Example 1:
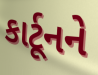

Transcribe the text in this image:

કાર્ટૂનને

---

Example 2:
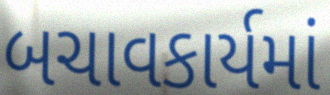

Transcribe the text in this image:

બચાવકાર્યમાં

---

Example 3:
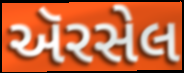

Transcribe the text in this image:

ઍરસેલ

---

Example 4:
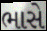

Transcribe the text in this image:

ભાસે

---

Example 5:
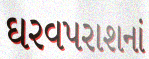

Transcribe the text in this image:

ઘરવપરાશનાં